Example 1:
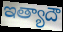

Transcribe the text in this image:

ఇత్యాదౌ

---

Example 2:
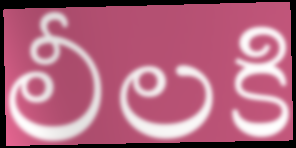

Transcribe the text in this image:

లీలకి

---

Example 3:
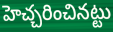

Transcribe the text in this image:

హెచ్చరించినట్టు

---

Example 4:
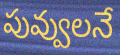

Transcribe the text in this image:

పువ్వులనే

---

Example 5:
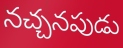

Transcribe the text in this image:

నచ్చనపుడు